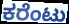
ಕರೆಂಟು